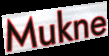
Mukne